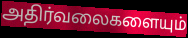
அதிர்வலைகளையும்